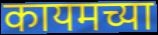
कायमच्या